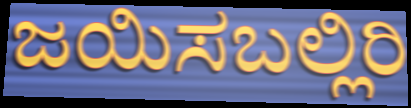
ಜಯಿಸಬಲ್ಲಿರಿ